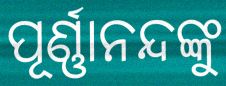
ପୂର୍ଣ୍ଣାନନ୍ଦଙ୍କୁ